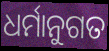
ଧର୍ମାନୁଗତ